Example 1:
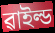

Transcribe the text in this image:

ৱাইল্ড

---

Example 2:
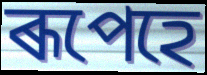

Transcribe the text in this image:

ৰূপেহে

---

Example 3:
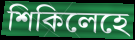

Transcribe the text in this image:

শিকিলেহে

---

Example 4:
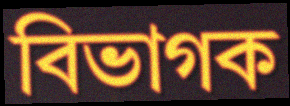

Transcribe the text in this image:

বিভাগক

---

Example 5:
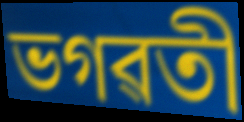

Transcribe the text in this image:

ভগৱতী